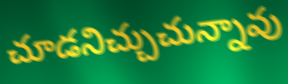
చూడనిచ్చుచున్నావు